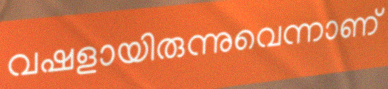
വഷളായിരുന്നുവെന്നാണ്